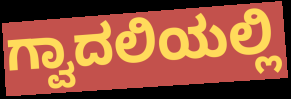
ಗ್ವಾದಲಿಯಲ್ಲಿ